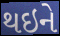
થઇને